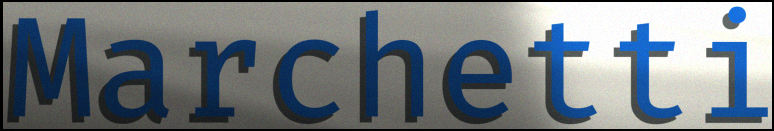
Marchetti